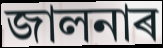
জালনাৰ